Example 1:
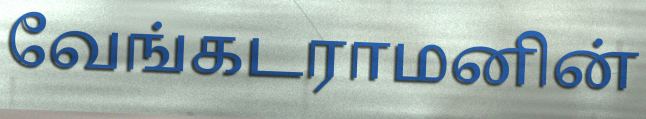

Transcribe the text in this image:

வேங்கடராமனின்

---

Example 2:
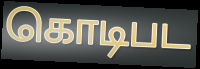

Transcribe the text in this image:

கொடிபட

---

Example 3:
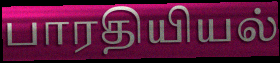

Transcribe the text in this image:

பாரதியியல்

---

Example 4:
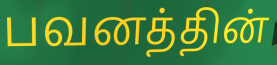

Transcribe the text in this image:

பவனத்தின்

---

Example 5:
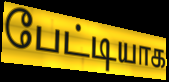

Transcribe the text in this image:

பேட்டியாக